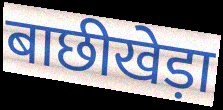
बाछीखेड़ा